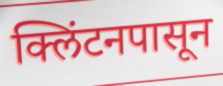
क्लिंटनपासून